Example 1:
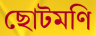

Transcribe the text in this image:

ছোটমণি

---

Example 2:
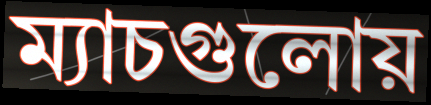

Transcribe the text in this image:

ম্যাচগুলোয়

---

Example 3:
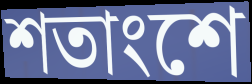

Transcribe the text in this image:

শতাংশে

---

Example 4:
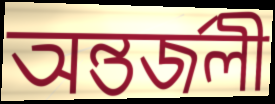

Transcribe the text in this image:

অন্তর্জলী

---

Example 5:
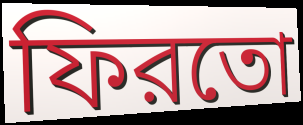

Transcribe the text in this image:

ফিরতো